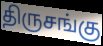
திருசங்கு